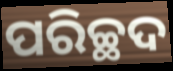
ପରିଚ୍ଛଦ